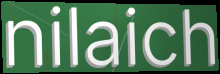
nilaich